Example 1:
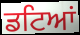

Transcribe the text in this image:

ਡਟਿਆਂ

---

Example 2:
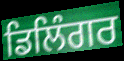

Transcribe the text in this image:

ਡਿਲਿੰਗਰ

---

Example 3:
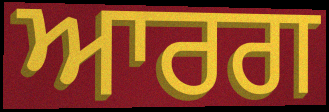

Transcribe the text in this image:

ਆਰਗ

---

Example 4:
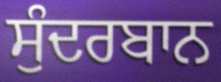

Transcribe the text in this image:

ਸੁੰਦਰਬਾਨ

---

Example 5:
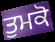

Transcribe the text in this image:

ਤੁਮਕੋ